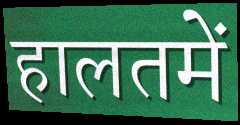
हालतमें